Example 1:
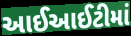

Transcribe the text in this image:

આઈઆઈટીમાં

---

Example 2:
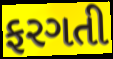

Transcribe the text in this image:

ફરગતી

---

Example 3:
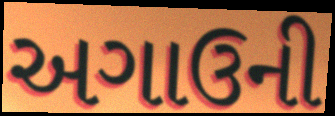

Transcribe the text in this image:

અગાઉની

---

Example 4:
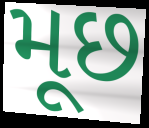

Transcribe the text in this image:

મૂછ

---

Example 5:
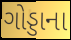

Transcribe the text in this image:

ગોડ્ડાના